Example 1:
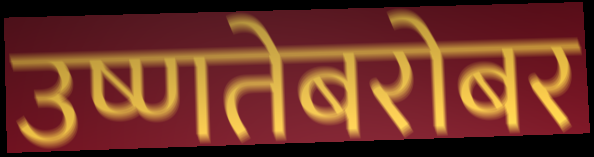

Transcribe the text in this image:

उष्णतेबरोबर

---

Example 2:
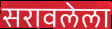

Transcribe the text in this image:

सरावलेला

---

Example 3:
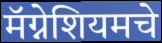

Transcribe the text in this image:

मॅग्नेशियमचे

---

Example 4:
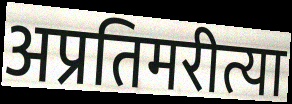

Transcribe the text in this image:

अप्रतिमरीत्या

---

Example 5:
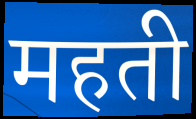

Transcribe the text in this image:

महती